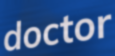
doctor